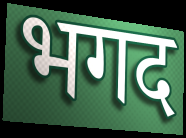
भगद